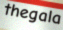
thegala